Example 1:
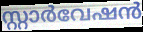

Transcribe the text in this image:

സ്റ്റാർവേഷൻ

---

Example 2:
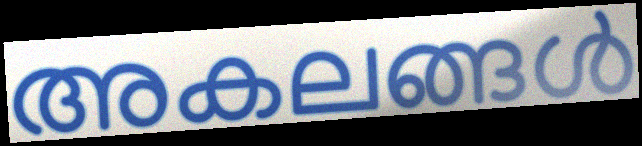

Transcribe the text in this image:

അകലങ്ങൾ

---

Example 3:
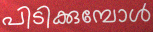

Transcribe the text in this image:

പിടിക്കുമ്പോൾ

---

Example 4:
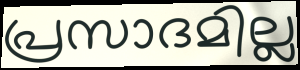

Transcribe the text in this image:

പ്രസാദമില്ല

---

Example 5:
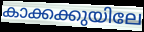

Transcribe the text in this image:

കാക്കക്കുയിലേ